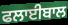
ਫਲਾਈਬਾਲ